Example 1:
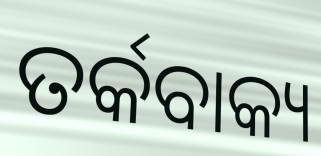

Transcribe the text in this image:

ତର୍କବାକ୍ୟ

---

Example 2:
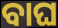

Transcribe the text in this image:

ବାଘ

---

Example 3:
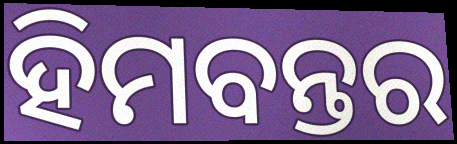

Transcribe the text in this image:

ହିମବନ୍ତର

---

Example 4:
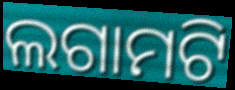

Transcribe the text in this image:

ଲଗାମଟି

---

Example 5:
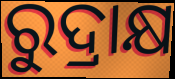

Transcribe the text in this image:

ରୁଦ୍ରାକ୍ଷ